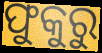
ଫୁକୁରୁ